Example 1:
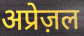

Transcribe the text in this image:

अप्रेज़ल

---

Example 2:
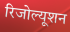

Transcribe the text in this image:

रिजोल्यूशन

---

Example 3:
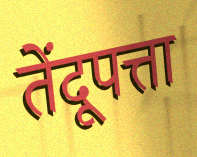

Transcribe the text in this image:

तेंदूपत्ता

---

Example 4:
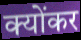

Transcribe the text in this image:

क्‍योंकर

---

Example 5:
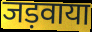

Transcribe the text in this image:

जड़वाया